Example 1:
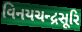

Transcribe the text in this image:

વિનયચન્દ્રસૂરિ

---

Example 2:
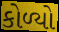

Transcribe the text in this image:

કોળ્યો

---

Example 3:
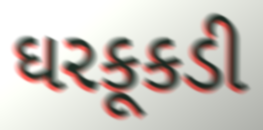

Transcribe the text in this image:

ઘરકૂકડી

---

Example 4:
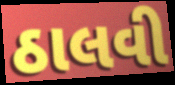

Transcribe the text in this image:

ઠાલવી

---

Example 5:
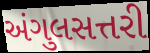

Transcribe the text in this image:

અંગુલસત્તરી